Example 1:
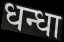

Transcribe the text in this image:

धन्धा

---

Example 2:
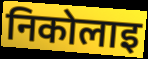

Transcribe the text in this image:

निकोलाइ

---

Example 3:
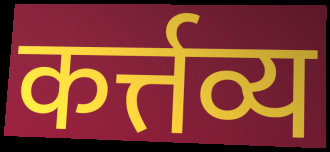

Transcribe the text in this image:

कर्त्तव्य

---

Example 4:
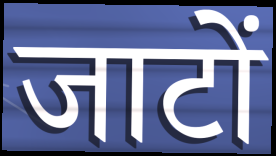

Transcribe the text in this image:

जाटों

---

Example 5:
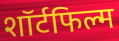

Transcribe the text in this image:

शॉर्टफिल्म